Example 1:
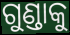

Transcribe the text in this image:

ଗୁଣ୍ଡାକୁ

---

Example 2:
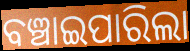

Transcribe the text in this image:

ବଞ୍ଚାଇପାରିଲା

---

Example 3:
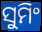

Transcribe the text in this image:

ସୁମିଂ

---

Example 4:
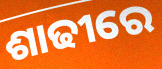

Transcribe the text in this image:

ଶାଢୀରେ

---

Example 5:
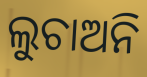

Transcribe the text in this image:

ଲୁଚାଅନି